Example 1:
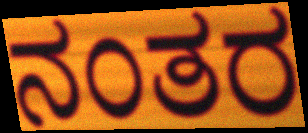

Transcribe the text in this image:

ನಂತರ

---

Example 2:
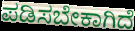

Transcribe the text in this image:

ಪಡಿಸಬೇಕಾಗಿದೆ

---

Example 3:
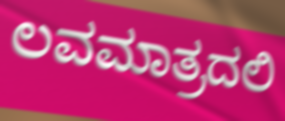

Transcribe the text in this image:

ಲವಮಾತ್ರದಲಿ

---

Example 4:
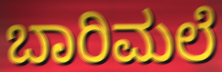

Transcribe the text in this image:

ಬಾರಿಮಲೆ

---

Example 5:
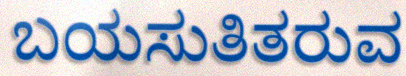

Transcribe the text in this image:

ಬಯಸುತಿತರುವ